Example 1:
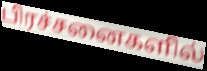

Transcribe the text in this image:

பிரச்சனைகளில்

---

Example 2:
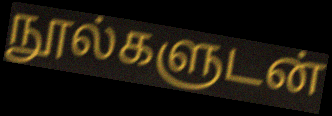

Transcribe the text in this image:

நூல்களுடன்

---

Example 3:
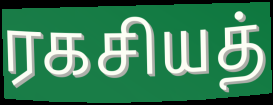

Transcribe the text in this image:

ரகசியத்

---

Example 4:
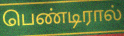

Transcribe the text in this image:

பெண்டிரால்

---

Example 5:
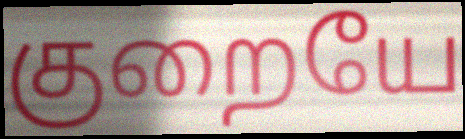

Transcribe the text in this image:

குறையே